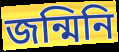
জন্মিনি